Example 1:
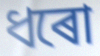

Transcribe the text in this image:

ধৰো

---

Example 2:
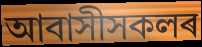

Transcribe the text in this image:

আবাসীসকলৰ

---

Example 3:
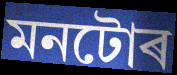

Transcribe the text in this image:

মনটোৰ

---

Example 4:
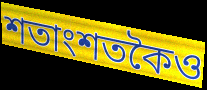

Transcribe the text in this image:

শতাংশতকৈও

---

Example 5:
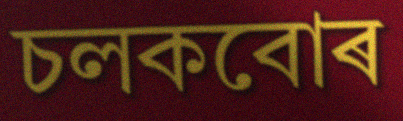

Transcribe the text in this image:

চলকবোৰ